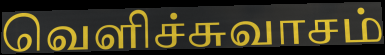
வெளிச்சுவாசம்